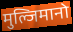
मुल्जिमानो